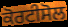
ਕੋਰਟੀਸੋਲ